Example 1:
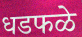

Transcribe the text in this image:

धडफळे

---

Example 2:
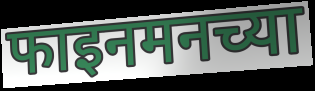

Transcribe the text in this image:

फाइनमनच्या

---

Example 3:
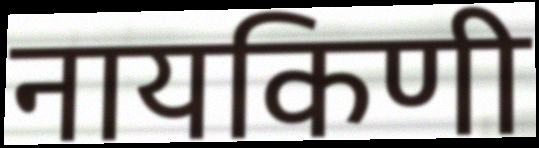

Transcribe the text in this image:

नायकिणी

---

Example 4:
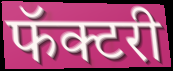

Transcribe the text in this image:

फॅक्टरी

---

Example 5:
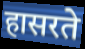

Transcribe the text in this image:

हासरते